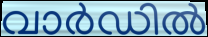
വാർഡിൽ